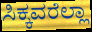
ಸಿಕ್ಕವರೆಲ್ಲಾ